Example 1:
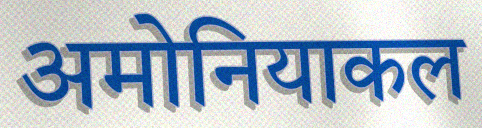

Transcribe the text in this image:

अमोनियाकल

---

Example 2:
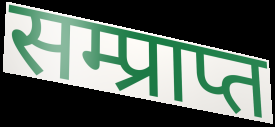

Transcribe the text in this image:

सम्प्राप्त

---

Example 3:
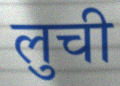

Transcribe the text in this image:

लुची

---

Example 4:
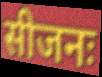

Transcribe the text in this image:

सीजनः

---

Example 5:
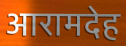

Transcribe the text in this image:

आरामदेह